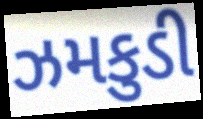
ઝમકુડી